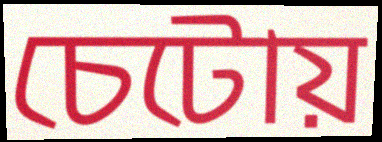
চেটোয়